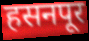
हसनपूर